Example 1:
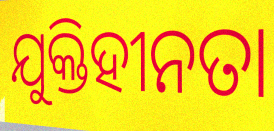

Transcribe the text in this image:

ଯୁକ୍ତିହୀନତା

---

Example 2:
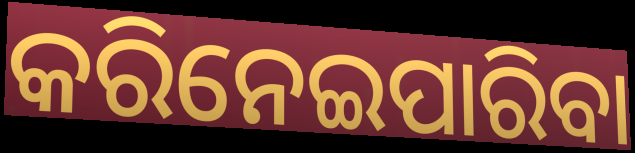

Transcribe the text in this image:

କରିନେଇପାରିବା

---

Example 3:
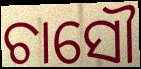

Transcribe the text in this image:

ଚାସୌ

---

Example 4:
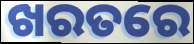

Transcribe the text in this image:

ଖରତରେ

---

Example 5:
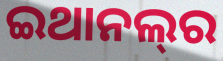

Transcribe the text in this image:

ଇଥାନଲ୍‌ର